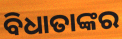
ବିଧାତାଙ୍କର